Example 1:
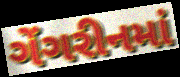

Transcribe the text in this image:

ગેંગરીનમાં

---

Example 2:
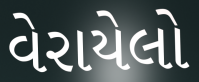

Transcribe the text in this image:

વેરાયેલો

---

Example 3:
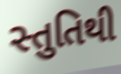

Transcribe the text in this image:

સ્તુતિથી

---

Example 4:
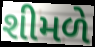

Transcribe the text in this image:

શીમળે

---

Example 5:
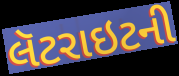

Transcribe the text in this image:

લૅટરાઇટની